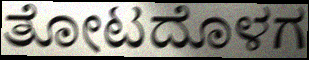
ತೋಟದೊಳಗ